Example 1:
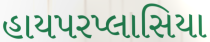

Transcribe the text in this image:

હાયપરપ્લાસિયા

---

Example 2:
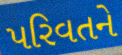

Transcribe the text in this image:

પરિવતને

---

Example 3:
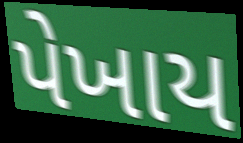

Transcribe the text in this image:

પેખાય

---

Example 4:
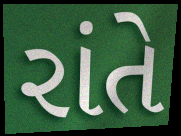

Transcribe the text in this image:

રાંતે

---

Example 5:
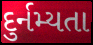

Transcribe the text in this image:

દુર્નમ્યતા